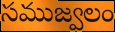
సముజ్వలం